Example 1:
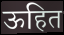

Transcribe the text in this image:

ऊहित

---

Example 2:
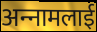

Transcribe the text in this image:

अन्‍नामलाई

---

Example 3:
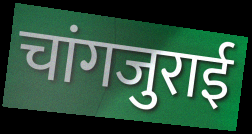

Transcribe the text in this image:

चांगजुराई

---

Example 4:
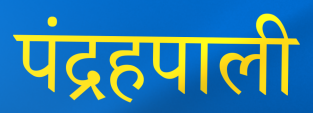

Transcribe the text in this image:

पंद्रहपाली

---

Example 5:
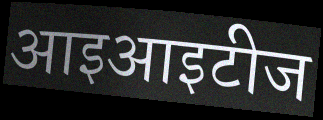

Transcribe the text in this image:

आइआइटीज